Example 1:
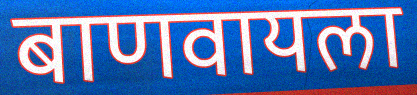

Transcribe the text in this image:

बाणवायला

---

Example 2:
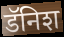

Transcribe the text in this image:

डॅनिश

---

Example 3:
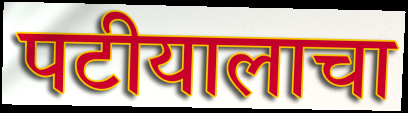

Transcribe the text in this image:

पटीयालाचा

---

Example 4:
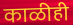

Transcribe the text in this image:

काळीही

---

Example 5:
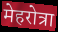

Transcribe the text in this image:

मेहरोत्रा